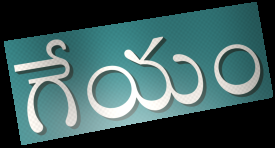
గేయం